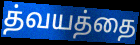
த்வயத்தை